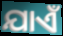
ଯାଏଁ